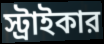
স্ট্রাইকার